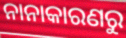
ନାନାକାରଣରୁ